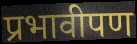
प्रभावीपण